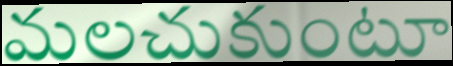
మలచుకుంటూ